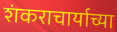
शंकराचार्याच्या